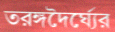
তরঙ্গদৈর্ঘ্যের